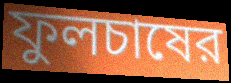
ফুলচাষের